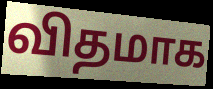
விதமாக